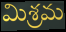
మిశ్రమ